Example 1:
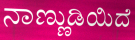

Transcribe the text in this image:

ನಾಣ್ಣುಡಿಯಿದೆ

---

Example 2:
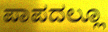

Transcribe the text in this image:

ಪಾಪದಲ್ಲೂ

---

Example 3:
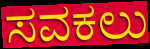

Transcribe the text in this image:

ಸವಕಲು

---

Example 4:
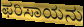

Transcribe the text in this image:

ಫರಿಸಾಯನು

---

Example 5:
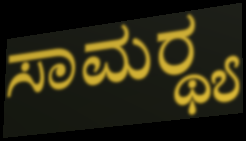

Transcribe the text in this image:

ಸಾಮರ್‍ಥ್ಯ